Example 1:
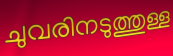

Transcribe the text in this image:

ചുവരിനടുത്തുള്ള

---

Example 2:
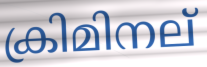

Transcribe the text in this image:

ക്രിമിനല്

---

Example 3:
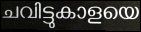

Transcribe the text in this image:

ചവിട്ടുകാളയെ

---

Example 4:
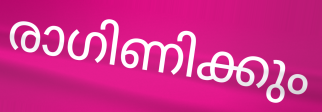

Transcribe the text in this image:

രാഗിണിക്കും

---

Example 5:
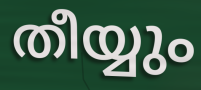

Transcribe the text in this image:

തീയ്യും